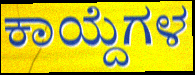
ಕಾಯ್ದೆಗಳ